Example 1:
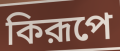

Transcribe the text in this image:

কিরূপে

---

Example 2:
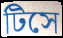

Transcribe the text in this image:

টিসে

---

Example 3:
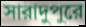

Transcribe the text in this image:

সারাদুপুরে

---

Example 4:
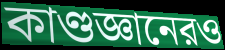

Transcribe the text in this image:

কাণ্ডজ্ঞানেরও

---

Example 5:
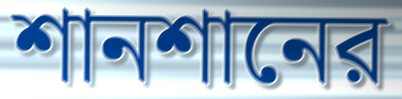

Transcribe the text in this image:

শানশানের